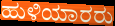
ಹುಳಿಯಾರರು